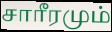
சாரீரமும்